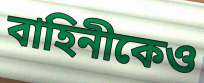
বাহিনীকেও